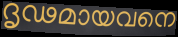
ദൃഢമായവനെ